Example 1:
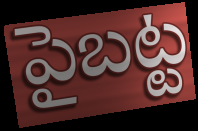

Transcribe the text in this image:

పైబట్ట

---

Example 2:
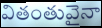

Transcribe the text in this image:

వితంతువైనా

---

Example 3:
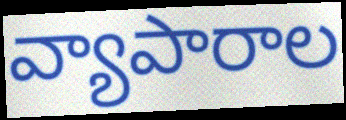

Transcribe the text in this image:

వ్యాపారాల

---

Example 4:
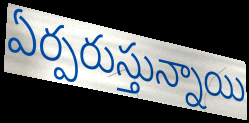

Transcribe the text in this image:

ఏర్పరుస్తున్నాయి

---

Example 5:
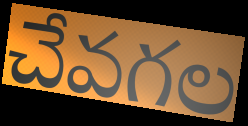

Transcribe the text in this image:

చేవగల